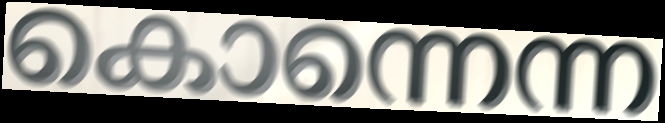
കൊന്നെന്ന